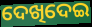
ଦେଖିଦେଇ